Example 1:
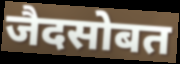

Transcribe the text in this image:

जैदसोबत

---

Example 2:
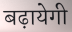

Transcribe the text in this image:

बढ़ायेगी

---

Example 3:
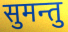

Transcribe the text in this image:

सुमन्तु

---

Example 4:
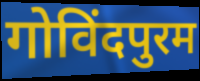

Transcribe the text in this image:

गोविंदपुरम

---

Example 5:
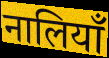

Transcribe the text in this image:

नालियाँ